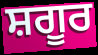
ਸ਼ਗੂਰ